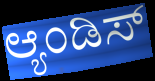
ಆ್ಯಂಡಿಸ್